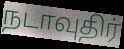
நடாவுதிர்